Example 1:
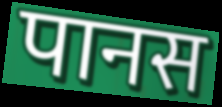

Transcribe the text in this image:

पानस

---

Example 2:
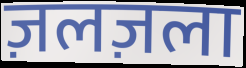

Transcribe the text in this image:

ज़लज़ला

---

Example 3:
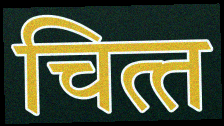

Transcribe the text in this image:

चित्‍त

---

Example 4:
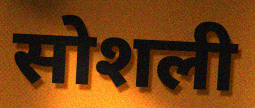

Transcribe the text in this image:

सोशली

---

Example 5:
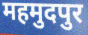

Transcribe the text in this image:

महमुदपुर